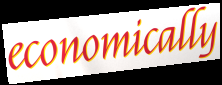
economically